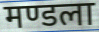
मण्डला